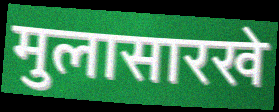
मुलासारखे